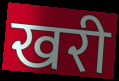
खरी